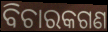
ବିଚାରକଗଣ